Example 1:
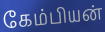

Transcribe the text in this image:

கேம்பியன்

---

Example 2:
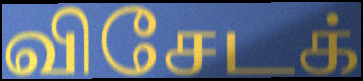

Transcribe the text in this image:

விசேடக்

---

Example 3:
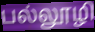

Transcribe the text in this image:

பல்லூழி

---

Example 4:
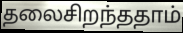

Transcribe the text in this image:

தலைசிறந்ததாம்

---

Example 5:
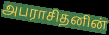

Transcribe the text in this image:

அபராசிதனின்